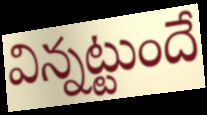
విన్నట్టుందే